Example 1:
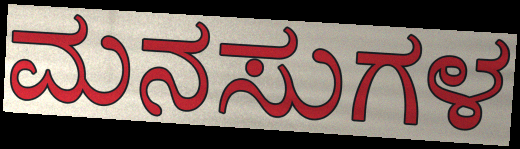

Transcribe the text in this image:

ಮನಸುಗಳ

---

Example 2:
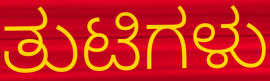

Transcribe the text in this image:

ತುಟಿಗಳು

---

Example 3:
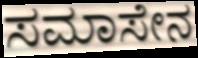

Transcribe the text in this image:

ಸಮಾಸೇನ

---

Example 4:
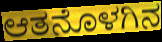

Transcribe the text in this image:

ಆತನೊಳಗಿನ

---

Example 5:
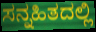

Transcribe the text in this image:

ಸನ್ನಹಿತದಲ್ಲಿ